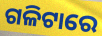
ଗଳିଟାରେ